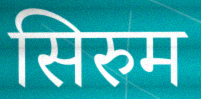
सिरुम